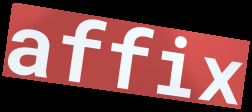
affix